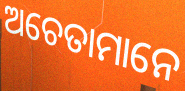
ଅଚେତାମାନେ